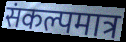
संकल्पमात्र